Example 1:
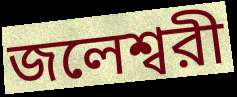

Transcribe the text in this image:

জলেশ্বরী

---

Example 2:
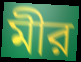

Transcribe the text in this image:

মীর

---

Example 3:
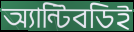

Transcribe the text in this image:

অ্যান্টিবডিই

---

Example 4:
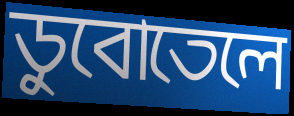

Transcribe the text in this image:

ডুবোতেলে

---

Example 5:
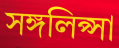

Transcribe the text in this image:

সঙ্গলিপ্সা